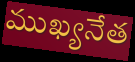
ముఖ్యనేత